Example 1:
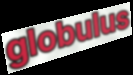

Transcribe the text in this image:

globulus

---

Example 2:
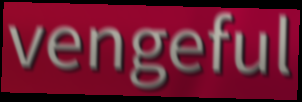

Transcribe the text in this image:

vengeful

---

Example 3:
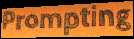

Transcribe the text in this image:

Prompting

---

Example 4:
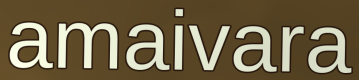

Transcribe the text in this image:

amaivara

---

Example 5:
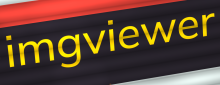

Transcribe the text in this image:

imgviewer